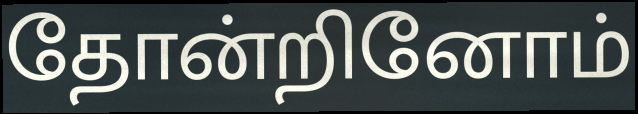
தோன்றினோம்